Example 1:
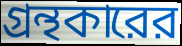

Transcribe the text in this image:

গ্রন্থকারের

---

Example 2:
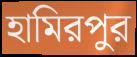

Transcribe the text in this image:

হামিরপুর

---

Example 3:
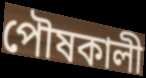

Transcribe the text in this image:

পৌষকালী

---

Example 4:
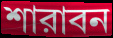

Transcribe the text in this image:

শারাবন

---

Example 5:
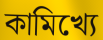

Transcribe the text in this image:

কামিখ্যে